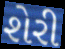
શેરી